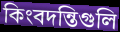
কিংবদন্তিগুলি